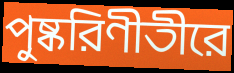
পুষ্করিণীতীরে